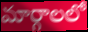
మార్గాలలో